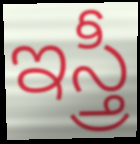
ఇస్త్రీ